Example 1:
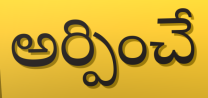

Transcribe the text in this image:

అర్పించే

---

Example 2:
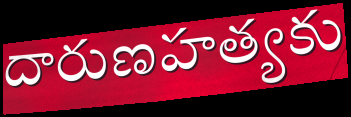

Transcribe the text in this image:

దారుణహత్యకు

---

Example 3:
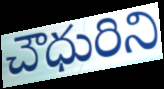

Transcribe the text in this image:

చౌధురిని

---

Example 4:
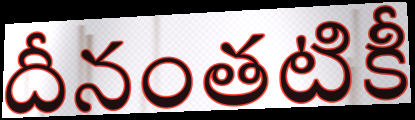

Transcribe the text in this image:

దీనంతటికీ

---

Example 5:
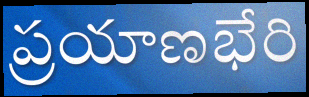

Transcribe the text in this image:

ప్రయాణభేరి